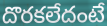
దొరకలేదంటే